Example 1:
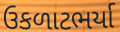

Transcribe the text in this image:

ઉકળાટભર્યા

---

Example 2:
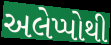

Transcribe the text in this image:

અલેપ્પોથી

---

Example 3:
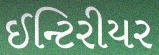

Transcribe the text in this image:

ઈન્ટિરીયર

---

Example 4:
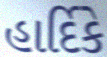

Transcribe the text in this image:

હાર્દિકે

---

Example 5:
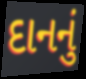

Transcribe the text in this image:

દાનનું